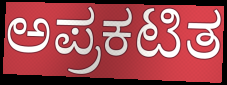
ಅಪ್ರಕಟಿತ